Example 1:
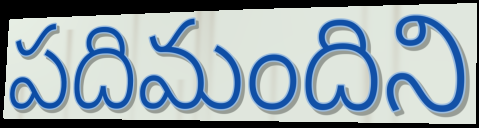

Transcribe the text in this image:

పదిమందిని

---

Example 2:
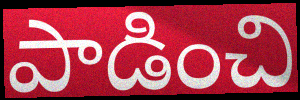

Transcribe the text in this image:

పాడించి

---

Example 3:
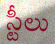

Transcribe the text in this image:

స్టీలు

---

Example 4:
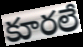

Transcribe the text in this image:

కూరలే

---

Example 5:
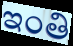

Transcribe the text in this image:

ఇంతి